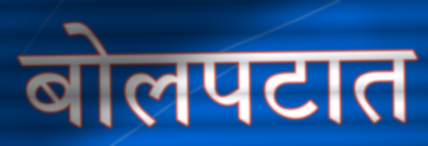
बोलपटात